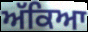
ਅੱਕਿਆ